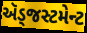
ઍડ્જસ્ટમેન્ટ